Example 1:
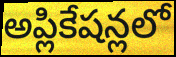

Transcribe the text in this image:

అప్లికేషన్లలో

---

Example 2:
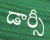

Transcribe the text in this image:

డార్సీ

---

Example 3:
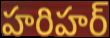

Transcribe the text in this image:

హరిహర్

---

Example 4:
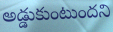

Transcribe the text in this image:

అడ్డుకుంటుందని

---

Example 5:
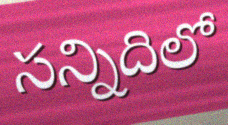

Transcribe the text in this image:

సన్నిదిలో